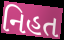
નિહત